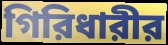
গিরিধারীর